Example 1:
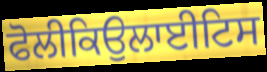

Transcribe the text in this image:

ਫੋਲੀਕਿਉਲਾਈਟਿਸ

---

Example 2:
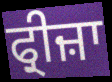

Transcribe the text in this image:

ਫ੍ਰੀਜ਼ਾ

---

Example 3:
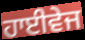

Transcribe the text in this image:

ਹਾਈਵੇਜ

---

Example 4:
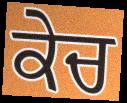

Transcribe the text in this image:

ਕੇਚ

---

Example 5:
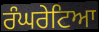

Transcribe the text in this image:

ਰੰਘਰੇਟਿਆ